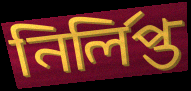
নিৰ্লিপ্ত